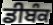
ਡੀਬੰਕ